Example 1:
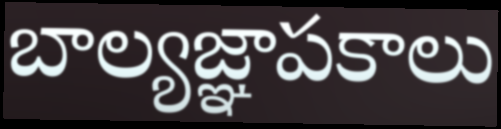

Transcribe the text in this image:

బాల్యజ్ఞాపకాలు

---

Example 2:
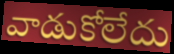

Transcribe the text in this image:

వాడుకోలేదు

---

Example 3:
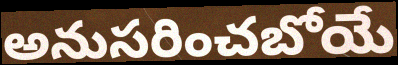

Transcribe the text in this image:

అనుసరించబోయే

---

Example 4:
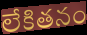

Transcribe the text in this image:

లేకితనం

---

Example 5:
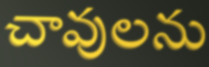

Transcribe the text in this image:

చావులను